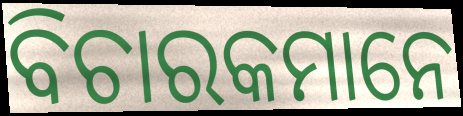
ବିଚାରକମାନେ